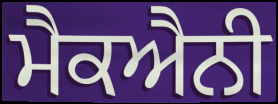
ਮੈਕਐਨੀ